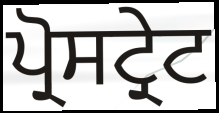
ਪ੍ਰੋਸਟ੍ਰੇਟ